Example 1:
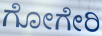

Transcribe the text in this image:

ಗೋಗೇರಿ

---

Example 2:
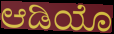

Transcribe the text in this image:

ಆಡಿಯೊ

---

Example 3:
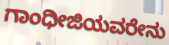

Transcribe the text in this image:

ಗಾಂಧೀಜಿಯವರೇನು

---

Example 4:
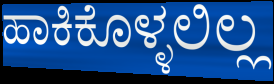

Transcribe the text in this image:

ಹಾಕಿಕೊಳ್ಳಲಿಲ್ಲ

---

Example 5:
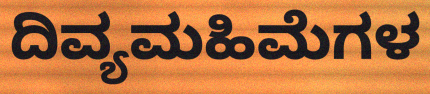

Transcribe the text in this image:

ದಿವ್ಯಮಹಿಮೆಗಳ